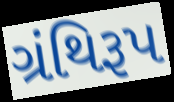
ગ્રંથિરૂપ